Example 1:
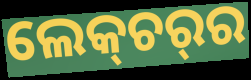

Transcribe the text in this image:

ଲେକ୍‌ଚର୍‌ର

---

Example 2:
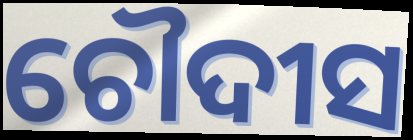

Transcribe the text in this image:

ଚୌଦୀସ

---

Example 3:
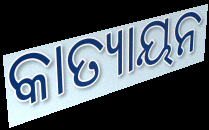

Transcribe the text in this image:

କାତ୍ୟାୟନ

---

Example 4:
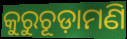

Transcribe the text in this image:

କୁରୁଚୂଡ଼ାମଣି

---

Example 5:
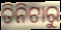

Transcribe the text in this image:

ତିନିଟାରୁ